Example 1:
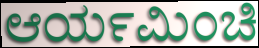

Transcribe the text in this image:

ಆರ್ಯಮಿಂಚಿ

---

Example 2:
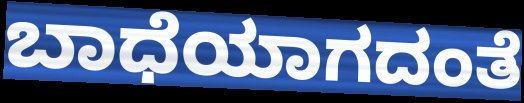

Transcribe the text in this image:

ಬಾಧೆಯಾಗದಂತೆ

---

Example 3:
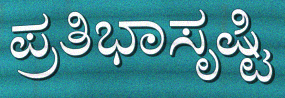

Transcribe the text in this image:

ಪ್ರತಿಭಾಸೃಷ್ಟಿ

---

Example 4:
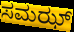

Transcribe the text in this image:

ಸಮಝ್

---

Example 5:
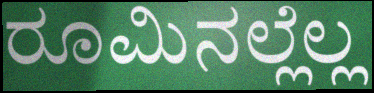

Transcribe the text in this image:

ರೂಮಿನಲ್ಲೆಲ್ಲ